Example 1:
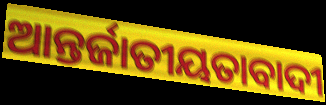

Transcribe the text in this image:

ଆନ୍ତର୍ଜାତୀୟତାବାଦୀ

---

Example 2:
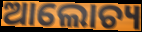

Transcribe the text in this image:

ଆଲୋଚ୍ୟ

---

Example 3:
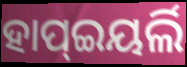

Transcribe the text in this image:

ହାପ୍ଇୟର୍ଲି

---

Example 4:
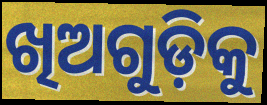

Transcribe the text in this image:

ଖିଅଗୁଡ଼ିକୁ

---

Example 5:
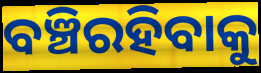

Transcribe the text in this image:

ବଞ୍ଚିରହିବାକୁ